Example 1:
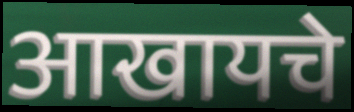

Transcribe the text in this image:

आखायचे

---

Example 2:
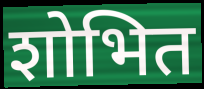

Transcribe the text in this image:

शोभित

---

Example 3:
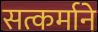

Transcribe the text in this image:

सत्कर्माने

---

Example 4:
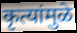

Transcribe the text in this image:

कृत्यांमुळे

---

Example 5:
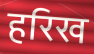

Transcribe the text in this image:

हरिख